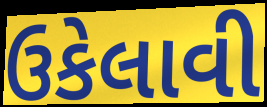
ઉકેલાવી